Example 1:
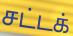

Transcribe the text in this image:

சட்டக்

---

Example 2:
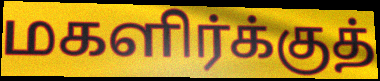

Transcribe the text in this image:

மகளிர்க்குத்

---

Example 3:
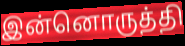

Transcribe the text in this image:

இன்னொருத்தி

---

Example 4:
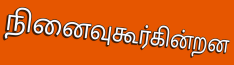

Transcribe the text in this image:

நினைவுகூர்கின்றன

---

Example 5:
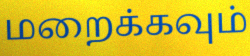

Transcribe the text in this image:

மறைக்கவும்